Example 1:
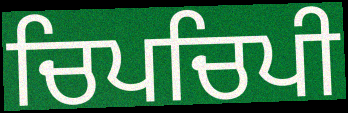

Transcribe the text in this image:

ਚਿਪਚਿਪੀ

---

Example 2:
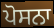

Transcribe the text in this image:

ਪੋਸਨਾ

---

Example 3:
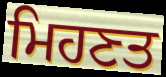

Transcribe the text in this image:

ਮਿਹਣਤ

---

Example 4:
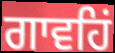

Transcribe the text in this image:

ਗਾਵਹਿਂ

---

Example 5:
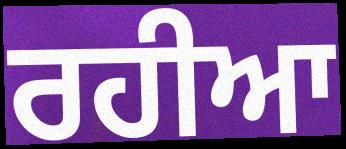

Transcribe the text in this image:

ਰਹੀਆ